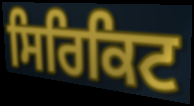
ਸਿਰਿਕਿਟ